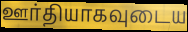
ஊர்தியாகவுடைய